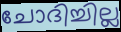
ചോദിച്ചില്ല